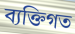
ব্যক্তিগত